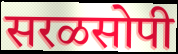
सरळसोपी